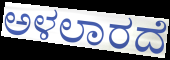
ಅಳಲಾರದೆ